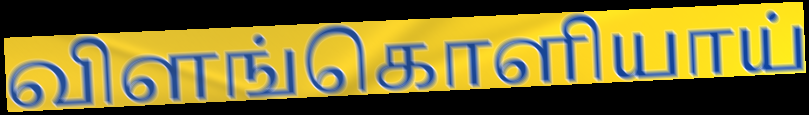
விளங்கொளியாய்